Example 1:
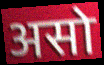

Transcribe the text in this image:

असो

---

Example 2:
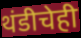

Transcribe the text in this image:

थंडीचेही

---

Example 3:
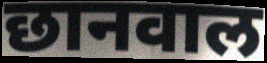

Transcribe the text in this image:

छानवाल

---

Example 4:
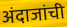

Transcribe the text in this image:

अंदाजांची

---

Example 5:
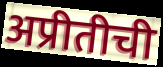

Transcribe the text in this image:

अप्रीतीची